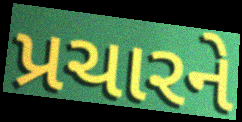
પ્રચારને